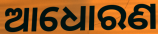
ଆଧୋରଣ